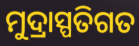
ମୁଦ୍ରାସ୍ପତିଗତ